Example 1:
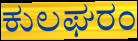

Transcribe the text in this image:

ಕುಲಘರಂ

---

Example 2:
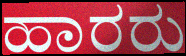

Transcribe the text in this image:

ಹಾರರು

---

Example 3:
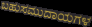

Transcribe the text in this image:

ಬಹುಸಮುದಾಯಗಳ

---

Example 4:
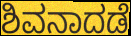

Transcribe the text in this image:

ಶಿವನಾದಡೆ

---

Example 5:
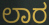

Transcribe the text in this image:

ಲಾರ